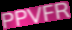
PPVFR